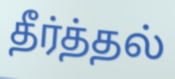
தீர்த்தல்